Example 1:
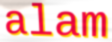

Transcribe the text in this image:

alam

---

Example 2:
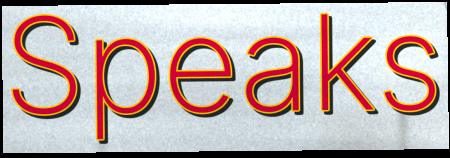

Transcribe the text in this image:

Speaks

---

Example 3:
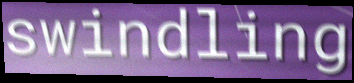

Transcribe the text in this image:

swindling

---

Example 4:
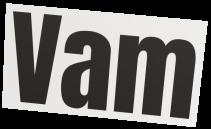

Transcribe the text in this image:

Vam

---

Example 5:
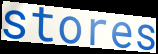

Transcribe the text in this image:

stores